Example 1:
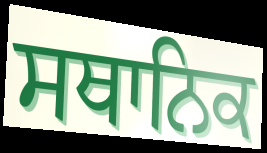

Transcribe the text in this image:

ਸਥਾਨਿਕ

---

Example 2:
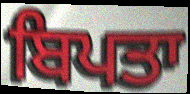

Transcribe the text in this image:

ਬਿਪਤਾ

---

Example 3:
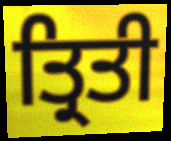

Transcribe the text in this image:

ਤ੍ਰਿਤੀ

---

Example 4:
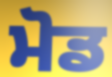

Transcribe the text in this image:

ਮੋਡ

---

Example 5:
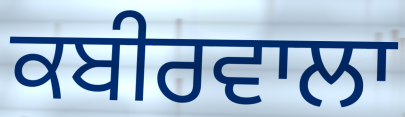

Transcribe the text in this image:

ਕਬੀਰਵਾਲਾ